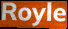
Royle